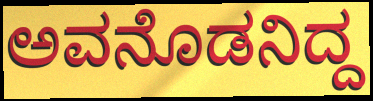
ಅವನೊಡನಿದ್ದ